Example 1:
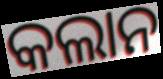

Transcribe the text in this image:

କଲାନ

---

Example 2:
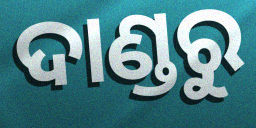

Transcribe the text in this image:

ଦାଣ୍ଡରୁ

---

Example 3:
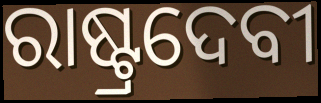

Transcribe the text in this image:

ରାଷ୍ଟ୍ରଦେବୀ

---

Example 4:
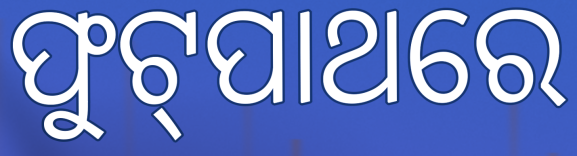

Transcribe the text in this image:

ଫୁଟ୍‍ପାଥରେ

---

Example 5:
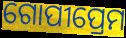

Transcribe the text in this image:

ଗୋପୀପ୍ରେମ